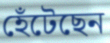
হেঁটেছেন